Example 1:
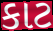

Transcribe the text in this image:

કાટ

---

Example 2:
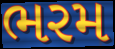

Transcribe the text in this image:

ભરમ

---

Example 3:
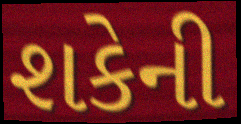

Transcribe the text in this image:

શકેની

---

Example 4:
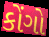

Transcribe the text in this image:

કોંગો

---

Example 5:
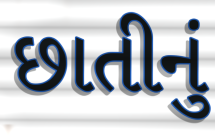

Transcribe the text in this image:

છાતીનું